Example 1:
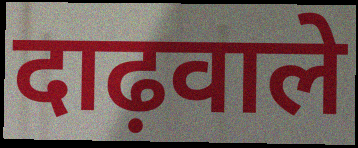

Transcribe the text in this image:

दाढ़वाले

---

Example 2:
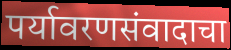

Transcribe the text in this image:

पर्यावरणसंवादाचा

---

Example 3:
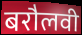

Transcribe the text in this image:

बरौलवी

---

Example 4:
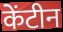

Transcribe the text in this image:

केंटीन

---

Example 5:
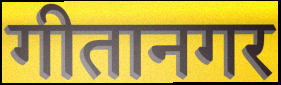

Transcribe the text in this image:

गीतानगर